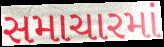
સમાચારમાં